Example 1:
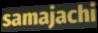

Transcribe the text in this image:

samajachi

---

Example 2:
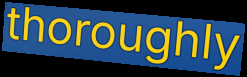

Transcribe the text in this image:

thoroughly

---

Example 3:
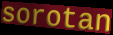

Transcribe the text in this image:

sorotan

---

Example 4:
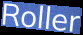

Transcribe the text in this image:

Roller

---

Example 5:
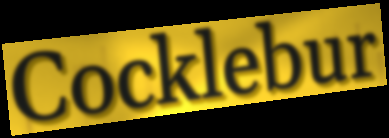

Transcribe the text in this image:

Cocklebur